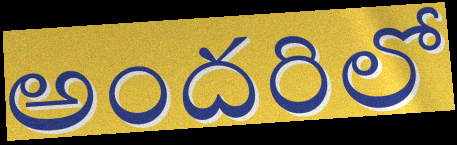
అందరిలో